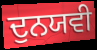
ਦੁਨਯਵੀ